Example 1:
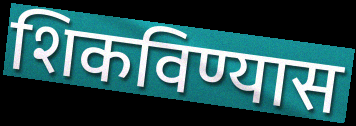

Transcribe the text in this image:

शिकविण्यास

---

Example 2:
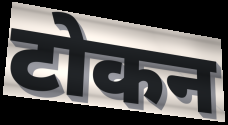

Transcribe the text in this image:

टोकन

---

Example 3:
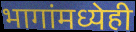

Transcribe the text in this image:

भागांमध्येही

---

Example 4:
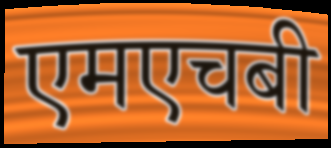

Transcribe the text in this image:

एमएचबी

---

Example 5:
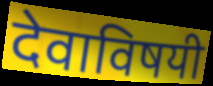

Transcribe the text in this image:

देवाविषयी